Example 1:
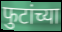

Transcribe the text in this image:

फुटांच्या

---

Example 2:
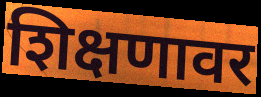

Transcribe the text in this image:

शिक्षणावर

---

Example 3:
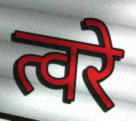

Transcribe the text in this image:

त्वरे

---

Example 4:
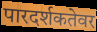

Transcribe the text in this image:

पारदर्शकतेवर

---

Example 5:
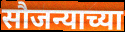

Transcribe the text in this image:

सौजन्याच्या